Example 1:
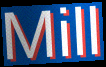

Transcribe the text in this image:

Mill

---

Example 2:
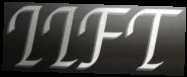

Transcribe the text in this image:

IIFT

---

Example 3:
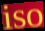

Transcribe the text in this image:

iso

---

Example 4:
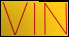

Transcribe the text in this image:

VIN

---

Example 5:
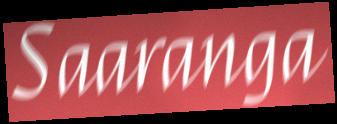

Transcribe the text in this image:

Saaranga